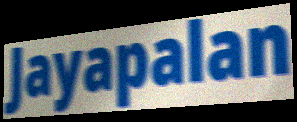
Jayapalan